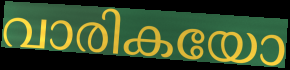
വാരികയോ